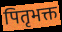
पितृभक्त